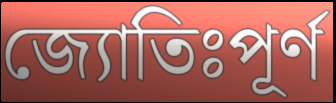
জ্যোতিঃপূর্ণ